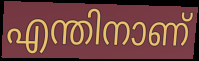
എന്തിനാണ്